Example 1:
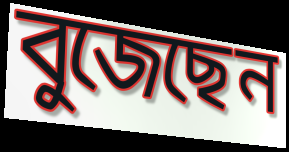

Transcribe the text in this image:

বুজেছেন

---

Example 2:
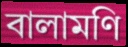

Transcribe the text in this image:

বালামণি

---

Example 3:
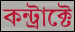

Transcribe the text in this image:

কন্ট্রাক্টে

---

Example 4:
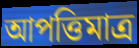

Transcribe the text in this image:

আপত্তিমাত্র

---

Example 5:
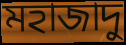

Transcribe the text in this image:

মহাজাদু